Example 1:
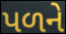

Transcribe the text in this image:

પળને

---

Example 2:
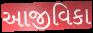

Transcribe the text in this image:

આજીવિકા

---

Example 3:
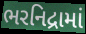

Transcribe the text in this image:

ભરનિદ્રામાં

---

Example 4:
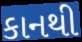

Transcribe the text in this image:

કાનથી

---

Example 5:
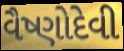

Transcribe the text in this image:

વૈષ્ણોદેવી